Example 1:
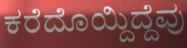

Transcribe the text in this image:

ಕರೆದೊಯ್ದಿದ್ದೆವು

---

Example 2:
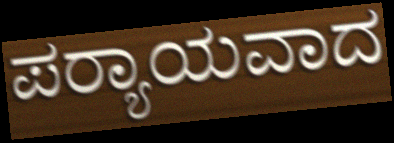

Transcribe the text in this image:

ಪರ‍್ಯಾಯವಾದ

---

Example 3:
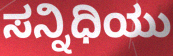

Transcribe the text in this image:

ಸನ್ನಿಧಿಯು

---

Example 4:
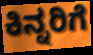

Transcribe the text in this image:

ಕಿನ್ನರಿಗೆ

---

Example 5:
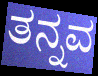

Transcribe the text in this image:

ತನ್ನವ